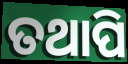
ତଥାପି